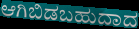
ಆಗಿಬಿಡಬಹುದಾದ